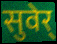
सुवेर्